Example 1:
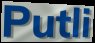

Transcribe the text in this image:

Putli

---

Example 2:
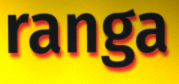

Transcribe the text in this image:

ranga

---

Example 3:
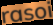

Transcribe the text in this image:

rasoi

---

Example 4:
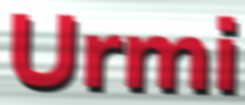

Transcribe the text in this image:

Urmi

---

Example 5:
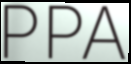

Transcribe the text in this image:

PPA